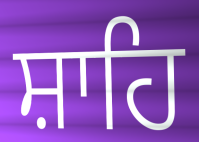
ਸ਼ਾਹਿ